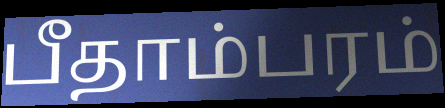
பீதாம்பரம்